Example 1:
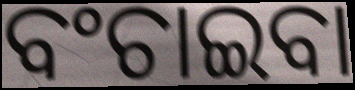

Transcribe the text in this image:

ବଂଚାଇବା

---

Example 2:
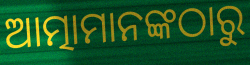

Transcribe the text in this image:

ଆତ୍ମାମାନଙ୍କଠାରୁ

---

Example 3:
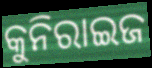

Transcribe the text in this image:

କୁନିରାଇଜ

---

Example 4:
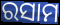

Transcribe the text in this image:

ରସାମ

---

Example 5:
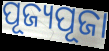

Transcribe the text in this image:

ପୂଜ୍ୟପୂଜା